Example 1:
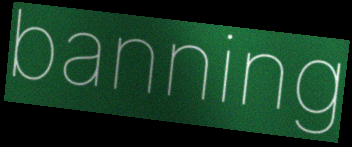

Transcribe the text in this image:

banning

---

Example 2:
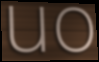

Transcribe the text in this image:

uo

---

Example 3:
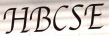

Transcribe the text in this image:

HBCSE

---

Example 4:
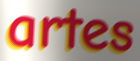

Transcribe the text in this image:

artes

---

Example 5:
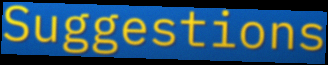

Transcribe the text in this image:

Suggestions